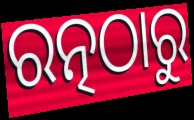
ରତ୍ନଠାରୁ